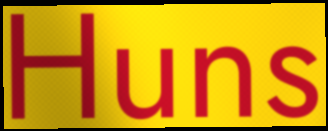
Huns